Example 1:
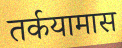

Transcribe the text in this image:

तर्कयामास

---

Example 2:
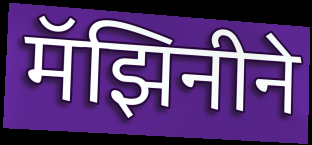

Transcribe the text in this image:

मॅझिनीने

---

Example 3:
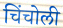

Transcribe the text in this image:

चिंचोली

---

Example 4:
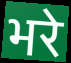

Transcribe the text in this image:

भरे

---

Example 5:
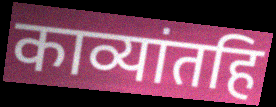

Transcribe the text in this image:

काव्यांतहि